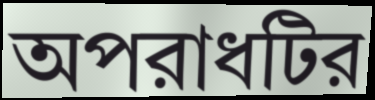
অপরাধটির